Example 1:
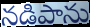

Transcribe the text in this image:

నడిపాను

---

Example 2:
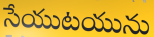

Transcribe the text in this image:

సేయుటయును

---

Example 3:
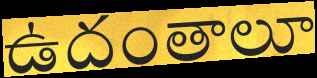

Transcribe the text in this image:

ఉదంతాలూ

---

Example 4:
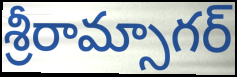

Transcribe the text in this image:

శ్రీరామ్సాగర్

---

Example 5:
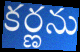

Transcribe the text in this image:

కర్ణను